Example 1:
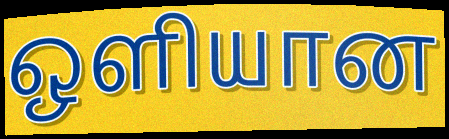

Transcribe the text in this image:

ஒளியான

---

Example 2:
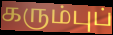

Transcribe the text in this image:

கரும்புப்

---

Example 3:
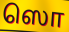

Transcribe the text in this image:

ஸொ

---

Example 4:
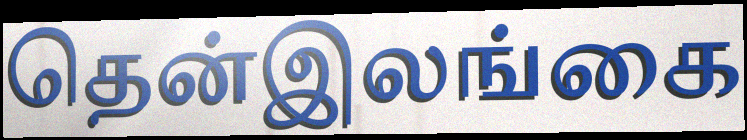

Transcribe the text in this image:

தென்இலங்கை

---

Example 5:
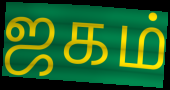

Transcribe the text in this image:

ஜகம்